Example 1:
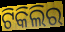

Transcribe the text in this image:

ଟିକିଲିର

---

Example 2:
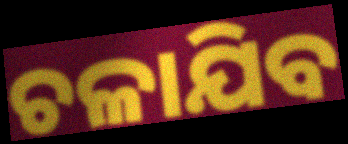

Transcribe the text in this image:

ଚଳାଯିବ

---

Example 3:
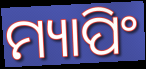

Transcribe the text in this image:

ମ୍ୟାପିଂ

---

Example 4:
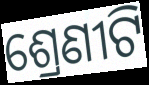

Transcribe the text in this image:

ଶ୍ରେଣୀଟି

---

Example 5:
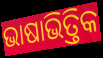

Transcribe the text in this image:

ଭାଷାଭିତ୍ତିକ